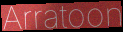
Arratoon